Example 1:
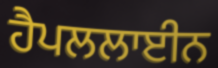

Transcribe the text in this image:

ਹੈਪਲਲਾਈਨ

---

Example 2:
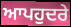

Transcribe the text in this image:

ਆਪਹੁਦਰੇ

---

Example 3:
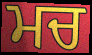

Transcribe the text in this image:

ਮਚ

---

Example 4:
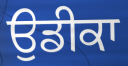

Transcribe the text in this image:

ਉਡੀਕਾ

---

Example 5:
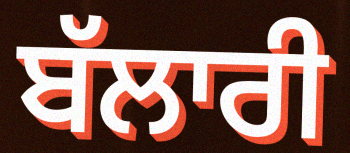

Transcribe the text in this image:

ਬੱਲਾਰੀ